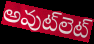
అవుట్‌లెట్